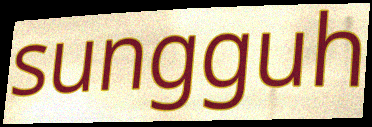
sungguh